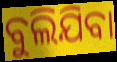
ବୁଲିଯିବା